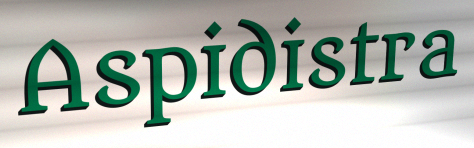
Aspidistra